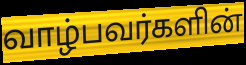
வாழ்பவர்களின்